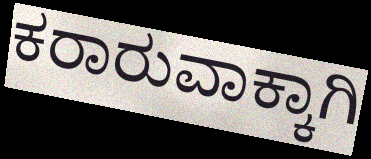
ಕರಾರುವಾಕ್ಕಾಗಿ